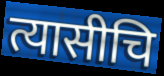
त्यासीचि